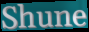
Shune